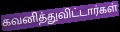
கவனித்துவிட்டார்கள்